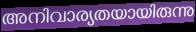
അനിവാര്യതയായിരുന്നു